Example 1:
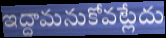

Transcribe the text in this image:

ఇద్దామనుకోవట్లేదు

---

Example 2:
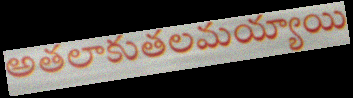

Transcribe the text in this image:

అతలాకుతలమయ్యాయి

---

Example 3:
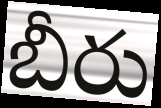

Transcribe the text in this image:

బీరు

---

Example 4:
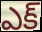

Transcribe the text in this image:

ఎక్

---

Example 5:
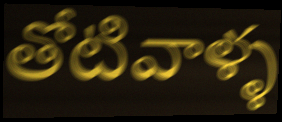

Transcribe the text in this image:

తోటివాళ్ళ